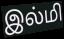
இல்மி